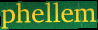
phellem